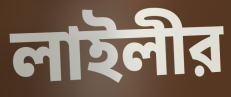
লাইলীর